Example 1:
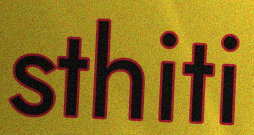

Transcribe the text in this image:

sthiti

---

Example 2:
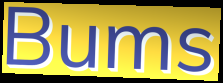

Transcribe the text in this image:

Bums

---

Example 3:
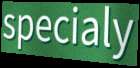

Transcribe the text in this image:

specialy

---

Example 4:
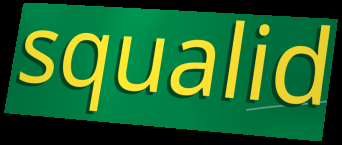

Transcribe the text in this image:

squalid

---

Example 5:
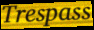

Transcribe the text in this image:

Trespass